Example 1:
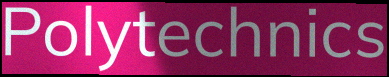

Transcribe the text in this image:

Polytechnics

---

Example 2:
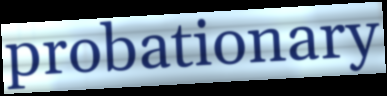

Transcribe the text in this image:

probationary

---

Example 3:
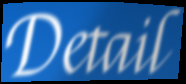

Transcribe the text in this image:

Detail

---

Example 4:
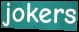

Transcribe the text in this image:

jokers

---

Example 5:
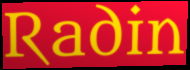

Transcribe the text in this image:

Radin